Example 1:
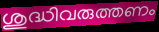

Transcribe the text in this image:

ശുദ്ധിവരുത്തണം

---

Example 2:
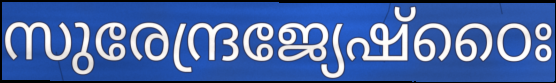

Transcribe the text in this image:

സുരേന്ദ്രജ്യേഷ്ഠൈഃ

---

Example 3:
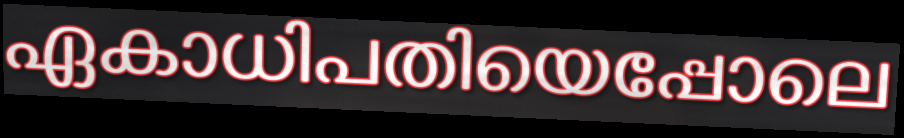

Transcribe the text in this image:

ഏകാധിപതിയെപ്പോലെ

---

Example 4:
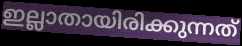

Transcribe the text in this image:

ഇല്ലാതായിരിക്കുന്നത്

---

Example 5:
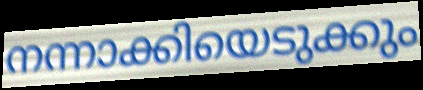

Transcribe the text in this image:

നന്നാക്കിയെടുക്കും